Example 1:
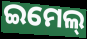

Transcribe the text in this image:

ଇମେଲ୍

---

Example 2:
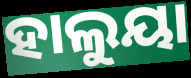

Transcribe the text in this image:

ହାଲୁୟା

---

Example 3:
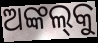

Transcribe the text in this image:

ଅଙ୍କଲ୍‌କୁ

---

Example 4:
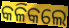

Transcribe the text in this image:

କଳିକଲେ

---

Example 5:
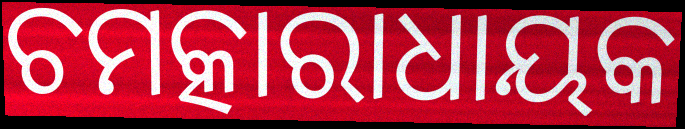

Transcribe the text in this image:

ଚମତ୍କାରାଧାୟକ